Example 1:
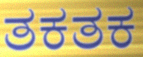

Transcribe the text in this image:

ತಕತಕ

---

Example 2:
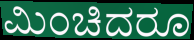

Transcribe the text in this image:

ಮಿಂಚಿದರೂ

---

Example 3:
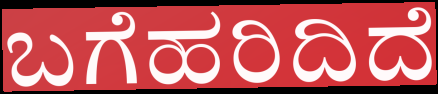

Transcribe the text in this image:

ಬಗೆಹರಿದಿದೆ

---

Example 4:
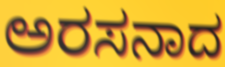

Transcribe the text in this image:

ಅರಸನಾದ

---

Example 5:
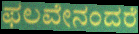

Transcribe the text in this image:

ಫಲವೇನಂದರೆ